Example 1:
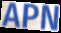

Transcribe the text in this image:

APN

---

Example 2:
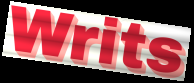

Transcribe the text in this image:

Writs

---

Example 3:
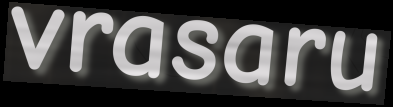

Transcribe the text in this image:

vrasaru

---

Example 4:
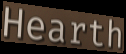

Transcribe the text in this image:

Hearth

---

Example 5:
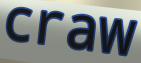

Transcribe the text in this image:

craw